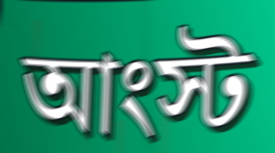
আংস্ট